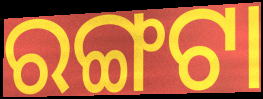
ରଙ୍ଗଟା